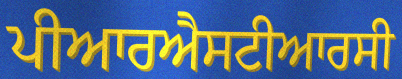
ਪੀਆਰਐਸਟੀਆਰਸੀ